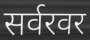
सर्वरवर